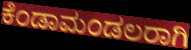
ಕೆಂಡಾಮಂಡಲರಾಗಿ